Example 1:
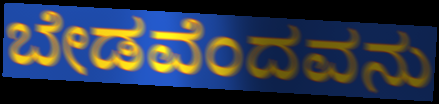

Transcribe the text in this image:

ಬೇಡವೆಂದವನು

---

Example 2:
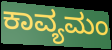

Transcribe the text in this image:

ಕಾವ್ಯಮಂ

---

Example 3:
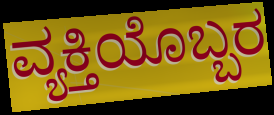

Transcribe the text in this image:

ವ್ಯಕ್ತಿಯೊಬ್ಬರ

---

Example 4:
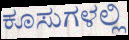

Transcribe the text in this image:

ಕೂಸುಗಳಲ್ಲಿ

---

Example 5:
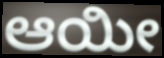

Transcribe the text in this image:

ಆಯೀ